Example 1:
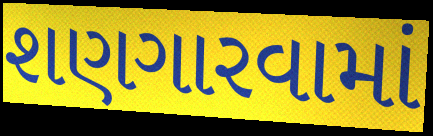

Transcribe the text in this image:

શણગારવામાં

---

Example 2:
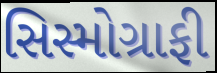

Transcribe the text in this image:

સિસ્મોગ્રાફી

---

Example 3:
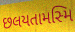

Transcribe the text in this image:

છલયતામસ્મિ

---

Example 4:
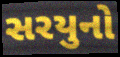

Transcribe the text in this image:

સરયુનો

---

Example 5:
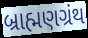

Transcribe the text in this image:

બ્રાહ્મણગ્રંથ